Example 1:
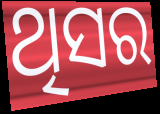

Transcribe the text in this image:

ଥିସର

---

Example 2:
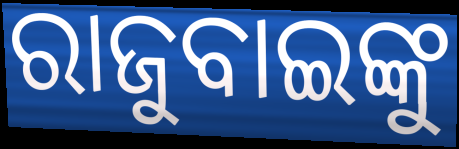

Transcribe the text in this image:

ରାଜୁବାଇଙ୍କୁ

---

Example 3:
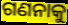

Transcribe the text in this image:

ଗଣନାକୁ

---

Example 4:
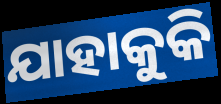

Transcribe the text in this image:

ଯାହାକୁକି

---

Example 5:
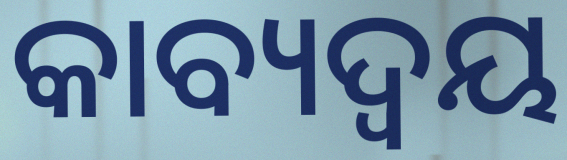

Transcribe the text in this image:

କାବ୍ୟଦ୍ୱୟ